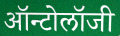
ऑन्टोलॉजी